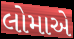
લોમાએ